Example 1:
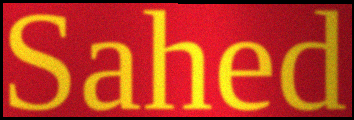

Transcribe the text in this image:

Sahed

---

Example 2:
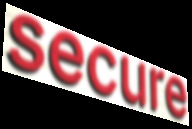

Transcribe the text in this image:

secure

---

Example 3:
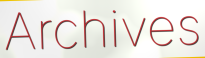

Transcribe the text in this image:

Archives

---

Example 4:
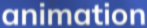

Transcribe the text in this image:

animation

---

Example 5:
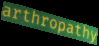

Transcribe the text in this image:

arthropathy